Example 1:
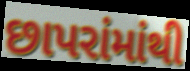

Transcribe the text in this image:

છાપરાંમાંથી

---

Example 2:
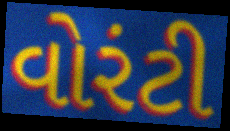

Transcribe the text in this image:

વોરંટી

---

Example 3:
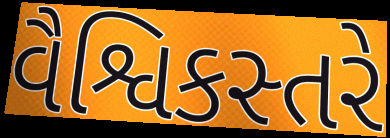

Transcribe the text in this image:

વૈશ્વિકસ્તરે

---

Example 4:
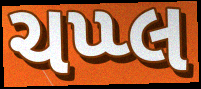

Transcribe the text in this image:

ચપ્પ્લ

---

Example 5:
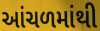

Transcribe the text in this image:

આંચળમાંથી